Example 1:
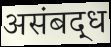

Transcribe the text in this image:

असंबद्ध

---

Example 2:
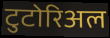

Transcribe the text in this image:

टुटोरिअल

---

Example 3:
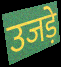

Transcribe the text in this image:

उजड़े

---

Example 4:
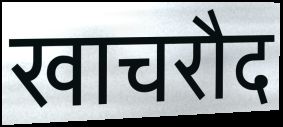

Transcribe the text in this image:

खाचरौद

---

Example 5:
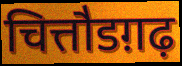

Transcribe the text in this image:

चित्तौडग़ढ़